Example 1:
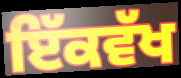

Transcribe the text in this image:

ਇੱਕਵੱਖ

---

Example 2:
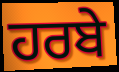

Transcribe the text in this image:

ਹਰਬੇ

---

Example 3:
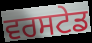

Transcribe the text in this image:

ਵਰਸਟੇਡ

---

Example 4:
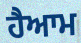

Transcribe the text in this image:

ਹੈਆਮ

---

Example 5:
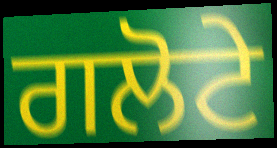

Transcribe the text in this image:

ਗਲੋਟੇ